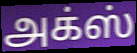
அக்ஸ்